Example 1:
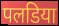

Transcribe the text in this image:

पलडिया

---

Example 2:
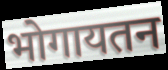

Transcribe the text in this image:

भोगायतन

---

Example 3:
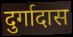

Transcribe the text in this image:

दुर्गादास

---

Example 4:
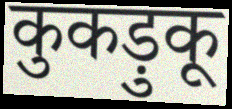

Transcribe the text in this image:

कुकड़ुकू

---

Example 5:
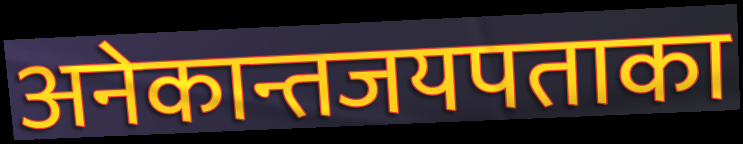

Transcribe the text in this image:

अनेकान्तजयपताका